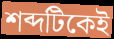
শব্দটিকেই